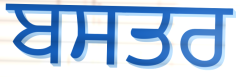
ਬਸਤਰ